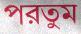
পরতুম